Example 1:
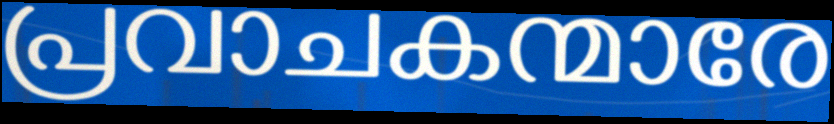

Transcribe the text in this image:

പ്രവാചകന്മാരേ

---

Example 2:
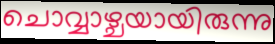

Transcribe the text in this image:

ചൊവ്വാഴ്ചയായിരുന്നു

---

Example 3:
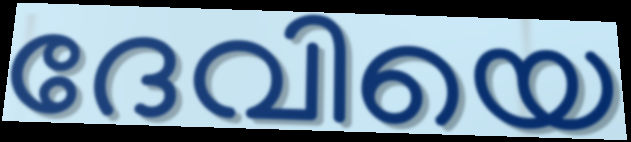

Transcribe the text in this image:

ദേവിയെ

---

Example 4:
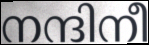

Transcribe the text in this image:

നന്ദിനീ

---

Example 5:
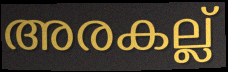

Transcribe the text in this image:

അരകല്ല്